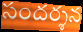
సందర్శన